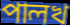
পালখ